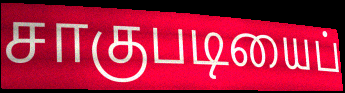
சாகுபடியைப்